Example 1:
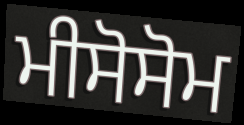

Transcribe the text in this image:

ਮੀਸੋਸੋਮ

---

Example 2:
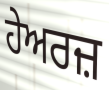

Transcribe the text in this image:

ਹੇਅਰਜ਼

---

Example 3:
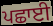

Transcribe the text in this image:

ਪਛਾਈ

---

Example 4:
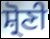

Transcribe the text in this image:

ਸ਼੍ਰੋਣੀ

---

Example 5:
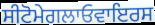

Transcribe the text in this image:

ਸੀਟੋਮੇਗਲਾਓਵਾਇਰਸ